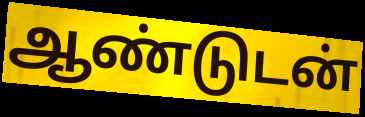
ஆண்டுடன்